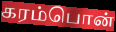
கரம்பொன்